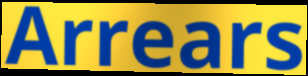
Arrears